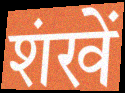
शंखें